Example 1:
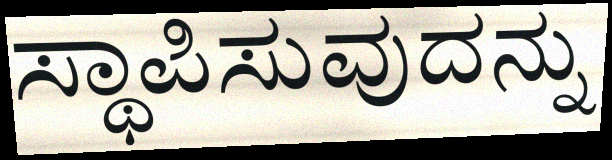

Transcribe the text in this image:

ಸ್ಥಾಪಿಸುವುದನ್ನು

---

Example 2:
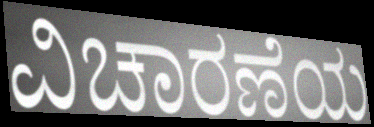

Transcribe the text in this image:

ವಿಚಾರಣೆಯ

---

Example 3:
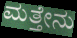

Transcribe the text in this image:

ಮತ್ತೇನು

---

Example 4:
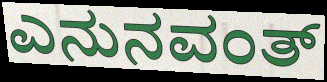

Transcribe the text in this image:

ಎನುನವಂತ್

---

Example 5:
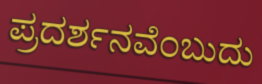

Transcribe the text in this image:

ಪ್ರದರ್ಶನವೆಂಬುದು